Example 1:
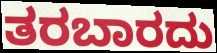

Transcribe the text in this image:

ತರಬಾರದು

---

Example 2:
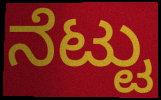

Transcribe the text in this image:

ನೆಟ್ಟು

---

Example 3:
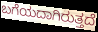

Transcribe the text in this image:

ಬಗೆಯದಾಗಿರುತ್ತದೆ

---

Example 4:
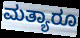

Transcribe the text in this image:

ಮತ್ಯಾರೂ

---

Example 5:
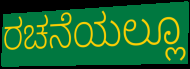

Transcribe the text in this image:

ರಚನೆಯಲ್ಲೂ